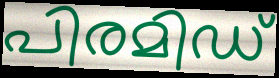
പിരമിഡ്